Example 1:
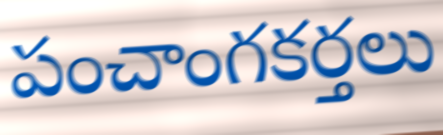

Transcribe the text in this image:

పంచాంగకర్తలు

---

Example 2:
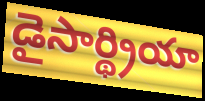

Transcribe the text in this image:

డైసార్థ్రియా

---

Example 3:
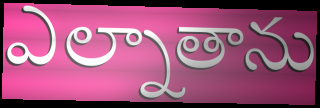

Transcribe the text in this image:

ఎల్నాతాను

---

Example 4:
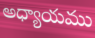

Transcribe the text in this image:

అధ్యాయము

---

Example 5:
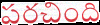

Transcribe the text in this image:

పరచింది